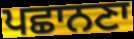
ਪਛਾਨਣਾ